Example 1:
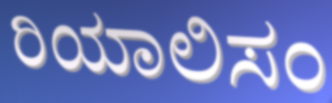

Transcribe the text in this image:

ರಿಯಾಲಿಸಂ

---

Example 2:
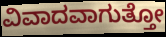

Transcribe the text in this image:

ವಿವಾದವಾಗುತ್ತೋ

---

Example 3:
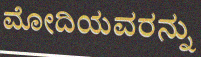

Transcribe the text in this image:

ಮೋದಿಯವರನ್ನು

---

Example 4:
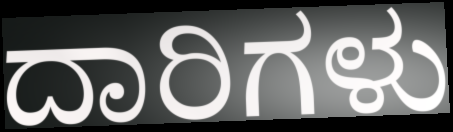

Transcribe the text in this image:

ದಾರಿಗಳು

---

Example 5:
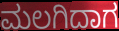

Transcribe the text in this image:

ಮಲಗಿದಾಗ